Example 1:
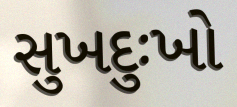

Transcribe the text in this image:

સુખદુઃખો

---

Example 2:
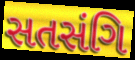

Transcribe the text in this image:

સતસંગિ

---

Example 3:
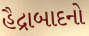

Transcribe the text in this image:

હૈદ્રાબાદનો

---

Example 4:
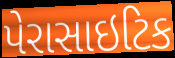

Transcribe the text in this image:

પેરાસાઇટિક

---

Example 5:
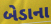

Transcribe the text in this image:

બેડાના